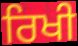
ਰਿਖੀ